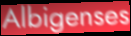
Albigenses